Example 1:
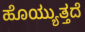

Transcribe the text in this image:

ಹೊಯ್ಯುತ್ತದೆ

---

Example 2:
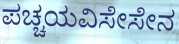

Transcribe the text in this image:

ಪಚ್ಚಯವಿಸೇಸೇನ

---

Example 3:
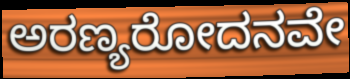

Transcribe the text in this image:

ಅರಣ್ಯರೋದನವೇ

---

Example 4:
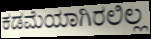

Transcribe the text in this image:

ಕಡಮೆಯಾಗಿರಲಿಲ್ಲ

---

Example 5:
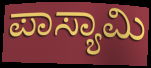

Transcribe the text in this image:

ಪಾಸ್ಯಾಮಿ